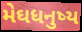
મેઘધનુષ્ય